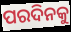
ପରଦିନକୁ